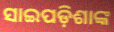
ସାଇପଡ଼ିଶାଙ୍କ